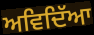
ਅਵਿਦਿੱਆ